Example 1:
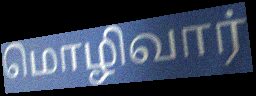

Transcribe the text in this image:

மொழிவார்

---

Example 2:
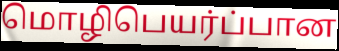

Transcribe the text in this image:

மொழிபெயர்ப்பான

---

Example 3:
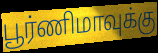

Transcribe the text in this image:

பூர்ணிமாவுக்கு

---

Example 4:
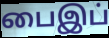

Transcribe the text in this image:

பைஇப்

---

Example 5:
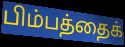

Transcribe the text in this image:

பிம்பத்தைக்